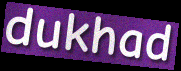
dukhad